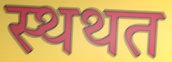
स्थथत